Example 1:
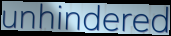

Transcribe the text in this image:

unhindered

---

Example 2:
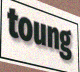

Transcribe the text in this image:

toung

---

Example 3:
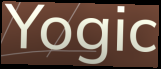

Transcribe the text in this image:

Yogic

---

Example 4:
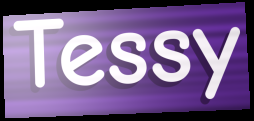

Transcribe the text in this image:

Tessy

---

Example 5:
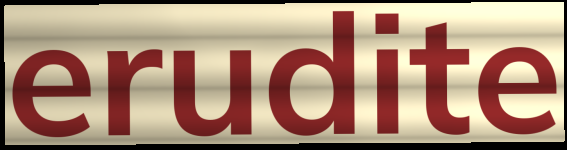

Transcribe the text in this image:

erudite